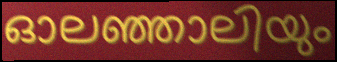
ഓലഞ്ഞാലിയും